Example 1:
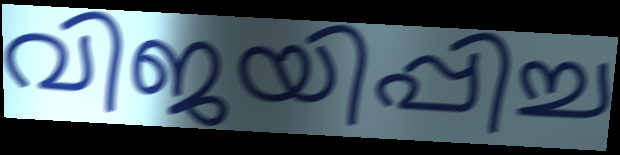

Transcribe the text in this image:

വിജയിപ്പിച്ച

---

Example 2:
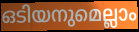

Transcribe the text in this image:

ഒടിയനുമെല്ലാം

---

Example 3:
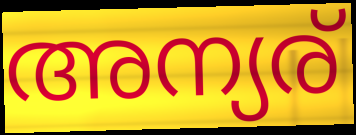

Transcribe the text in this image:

അന്യര്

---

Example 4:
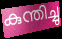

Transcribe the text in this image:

കുന്തിച്ചു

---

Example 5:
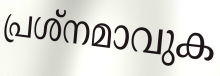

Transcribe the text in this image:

പ്രശ്നമാവുക